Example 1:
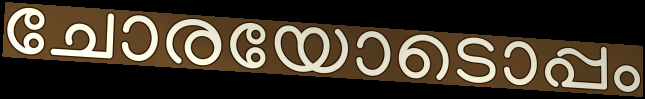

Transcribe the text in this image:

ചോരയോടൊപ്പം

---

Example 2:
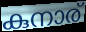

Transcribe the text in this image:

കുനാര്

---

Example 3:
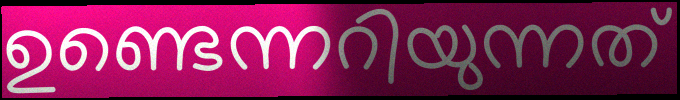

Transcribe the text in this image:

ഉണ്ടെന്നറിയുന്നത്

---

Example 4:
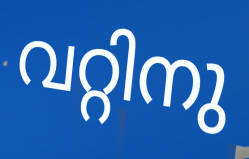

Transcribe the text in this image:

വറ്റിനു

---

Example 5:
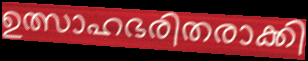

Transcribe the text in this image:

ഉത്സാഹഭരിതരാക്കി